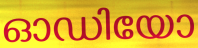
ഓഡിയോ